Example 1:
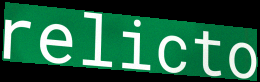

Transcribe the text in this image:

relicto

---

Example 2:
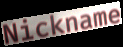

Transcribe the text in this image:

Nickname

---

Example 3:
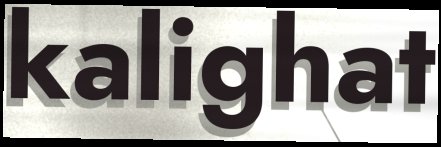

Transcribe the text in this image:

kalighat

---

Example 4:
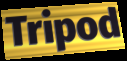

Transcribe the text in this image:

Tripod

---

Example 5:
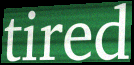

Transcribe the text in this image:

tired